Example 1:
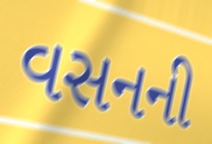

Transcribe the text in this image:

વસનની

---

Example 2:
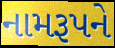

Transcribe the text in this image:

નામરૂપને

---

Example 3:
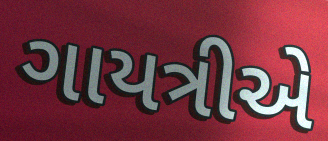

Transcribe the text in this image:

ગાયત્રીએ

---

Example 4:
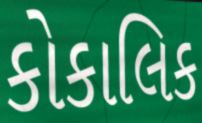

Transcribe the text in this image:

કોકાલિક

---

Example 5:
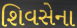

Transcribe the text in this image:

શિવસેના